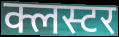
क्लस्टर